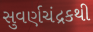
સુવર્ણચંદ્રકથી